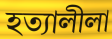
হত্যালীলা